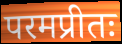
परमप्रीतः